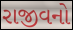
રાજીવનો